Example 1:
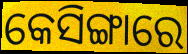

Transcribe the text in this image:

କେସିଙ୍ଗାରେ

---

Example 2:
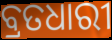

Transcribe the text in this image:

ବ୍ରତଧାରୀ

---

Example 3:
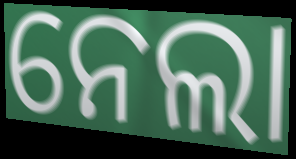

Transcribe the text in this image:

ନେଲା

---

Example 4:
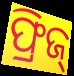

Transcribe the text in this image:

ଫ୍ରିଜ୍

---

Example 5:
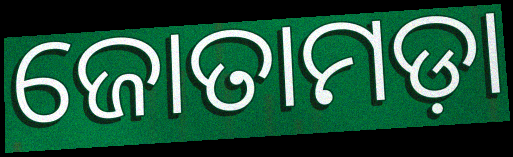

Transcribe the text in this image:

ଜୋତାମଡ଼ା